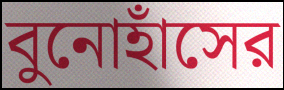
বুনোহাঁসের